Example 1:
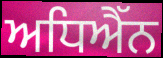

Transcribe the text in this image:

ਅਧਿਐੱਨ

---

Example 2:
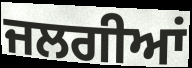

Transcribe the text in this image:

ਜਲਗੀਆਂ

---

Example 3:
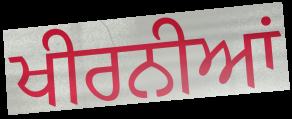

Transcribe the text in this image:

ਖੀਰਨੀਆਂ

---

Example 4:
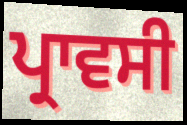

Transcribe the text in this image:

ਪ੍ਰਾਵਸੀ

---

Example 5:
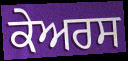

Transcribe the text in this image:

ਕੇਅਰਸ